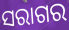
ସରାଗର